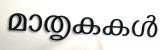
മാതൃകകൾ